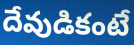
దేవుడికంటే